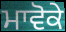
ਮਾਵੋਕੇ